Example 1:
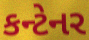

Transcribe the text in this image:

કન્ટેનર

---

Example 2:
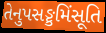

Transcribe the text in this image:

તેનુપસઙ્કમિંસૂતિ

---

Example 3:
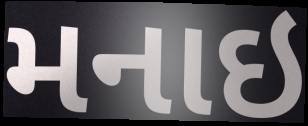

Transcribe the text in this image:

મનાઇ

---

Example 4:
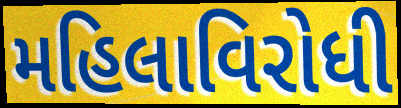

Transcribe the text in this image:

મહિલાવિરોધી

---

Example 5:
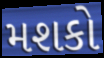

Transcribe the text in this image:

મશકો